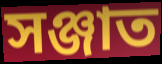
সঞ্জাত